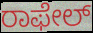
ರಾಫೇಲ್